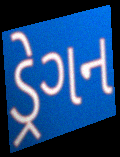
ડ્રેગન